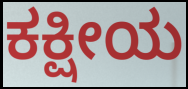
ಕಕ್ಷೀಯ